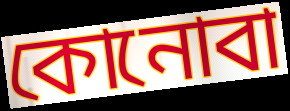
কোনোবা